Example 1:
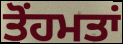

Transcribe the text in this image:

ਤੋਂਹਮਤਾਂ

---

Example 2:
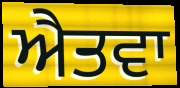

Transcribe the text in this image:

ਐਤਵਾ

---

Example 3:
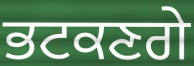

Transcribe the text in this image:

ਭਟਕਣਗੇ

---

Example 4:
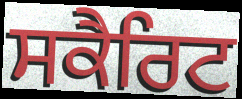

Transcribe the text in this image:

ਸਕੈਰਿਟ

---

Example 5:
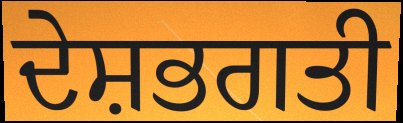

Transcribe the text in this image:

ਦੇਸ਼ਭਗਤੀ